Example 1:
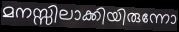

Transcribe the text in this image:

മനസ്സിലാക്കിയിരുന്നോ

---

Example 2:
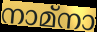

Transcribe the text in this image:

നാമ്നാ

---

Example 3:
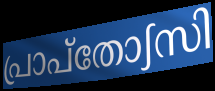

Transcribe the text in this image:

പ്രാപ്തോഽസി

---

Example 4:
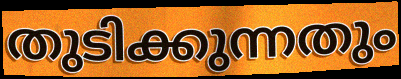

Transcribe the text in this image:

തുടിക്കുന്നതും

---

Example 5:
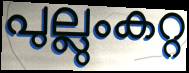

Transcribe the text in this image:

പുല്ലുംകറ്റ